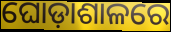
ଘୋଡ଼ାଶାଳରେ